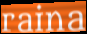
raina